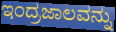
ಇಂದ್ರಜಾಲವನ್ನು